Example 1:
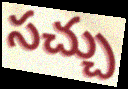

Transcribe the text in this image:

సచ్చు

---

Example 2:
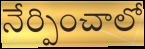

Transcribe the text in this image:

నేర్పించాలో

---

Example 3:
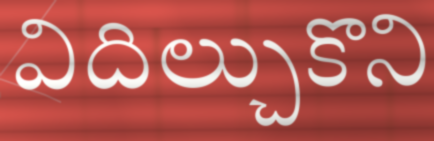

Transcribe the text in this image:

విదిల్చుకొని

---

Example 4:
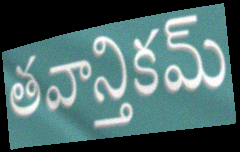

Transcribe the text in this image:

తవాన్తికమ్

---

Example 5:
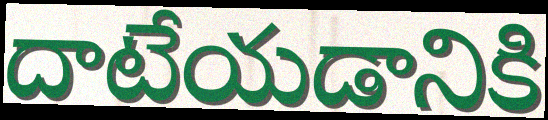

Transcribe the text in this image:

దాటేయడానికి